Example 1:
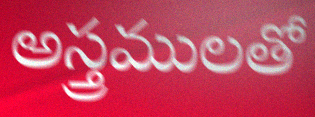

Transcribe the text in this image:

అస్త్రములతో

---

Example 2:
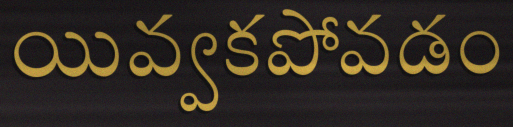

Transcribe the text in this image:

యివ్వకపోవడం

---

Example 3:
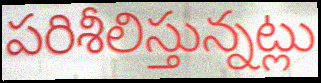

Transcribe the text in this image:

పరిశీలిస్తున్నట్లు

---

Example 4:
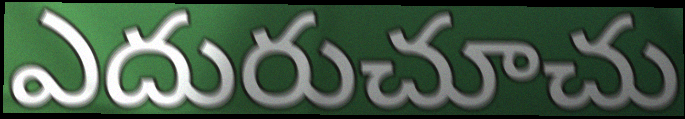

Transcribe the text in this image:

ఎదురుచూచు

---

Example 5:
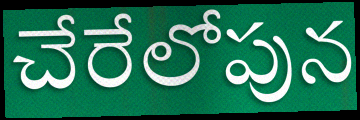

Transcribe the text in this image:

చేరేలోపున